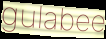
gulabee